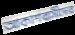
আকাশবাসীদের